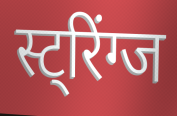
स्ट्रिंग्ज